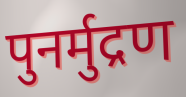
पुनर्मुद्रण